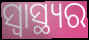
ସ୍ୱାସ୍ଥ୍ୟର